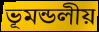
ভূমন্ডলীয়